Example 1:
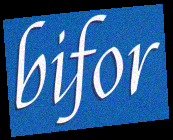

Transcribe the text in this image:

bifor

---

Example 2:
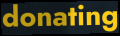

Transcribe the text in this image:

donating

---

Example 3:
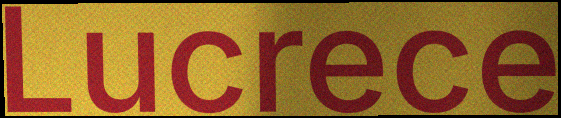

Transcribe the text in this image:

Lucrece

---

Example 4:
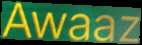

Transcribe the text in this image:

Awaaz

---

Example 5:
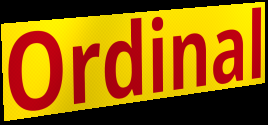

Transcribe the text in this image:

Ordinal